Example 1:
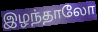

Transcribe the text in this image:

இழந்தாலோ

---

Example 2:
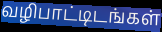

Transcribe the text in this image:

வழிபாட்டிடங்கள்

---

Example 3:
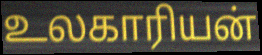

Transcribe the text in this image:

உலகாரியன்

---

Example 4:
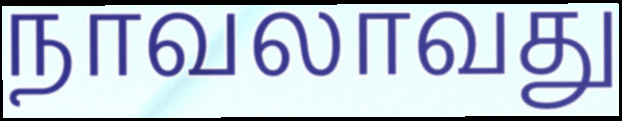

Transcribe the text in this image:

நாவலாவது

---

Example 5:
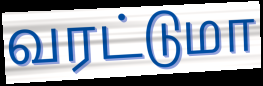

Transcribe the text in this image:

வரட்டுமா